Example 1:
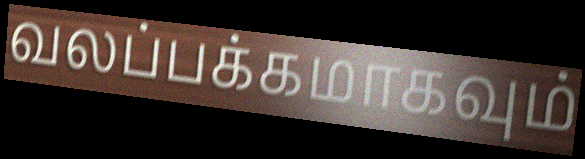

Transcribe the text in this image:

வலப்பக்கமாகவும்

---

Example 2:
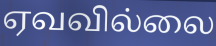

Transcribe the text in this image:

ஏவவில்லை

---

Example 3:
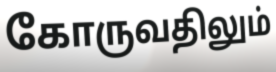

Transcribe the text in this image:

கோருவதிலும்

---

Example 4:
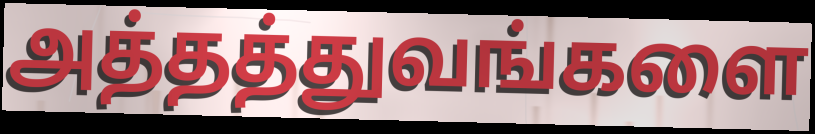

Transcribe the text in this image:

அத்தத்துவங்களை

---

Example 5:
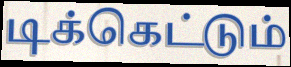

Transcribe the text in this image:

டிக்கெட்டும்